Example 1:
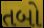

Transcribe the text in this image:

તબો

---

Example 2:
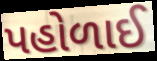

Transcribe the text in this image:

પહોળાઈ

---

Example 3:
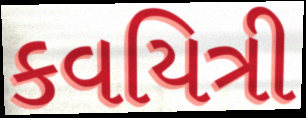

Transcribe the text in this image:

કવયિત્રી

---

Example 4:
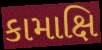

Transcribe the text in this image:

કામાક્ષિ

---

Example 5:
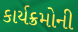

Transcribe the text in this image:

કાર્યક્રમોની